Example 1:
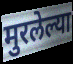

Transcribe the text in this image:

मुरलेल्या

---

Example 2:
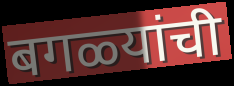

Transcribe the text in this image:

बगळ्यांची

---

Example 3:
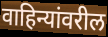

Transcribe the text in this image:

वाहिन्यांवरील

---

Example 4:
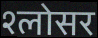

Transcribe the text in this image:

श्लोसर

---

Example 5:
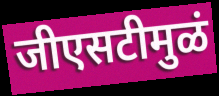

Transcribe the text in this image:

जीएसटीमुळं